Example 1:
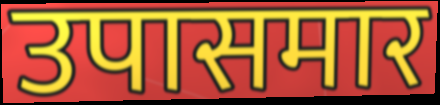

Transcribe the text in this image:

उपासमार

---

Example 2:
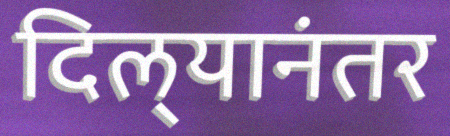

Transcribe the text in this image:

दिल्यानंतर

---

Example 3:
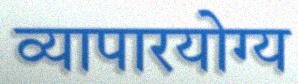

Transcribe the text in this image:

व्यापारयोग्य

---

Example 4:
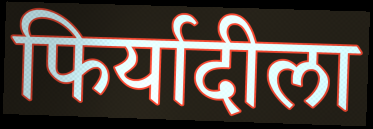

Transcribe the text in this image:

फिर्यादीला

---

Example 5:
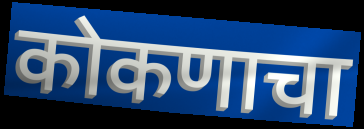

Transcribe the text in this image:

कोकणाचा